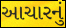
આચારનું